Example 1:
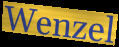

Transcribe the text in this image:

Wenzel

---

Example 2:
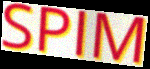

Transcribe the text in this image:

SPIM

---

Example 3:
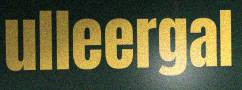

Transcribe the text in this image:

ulleergal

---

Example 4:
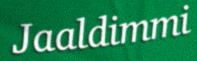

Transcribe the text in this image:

Jaaldimmi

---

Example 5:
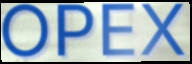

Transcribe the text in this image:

OPEX